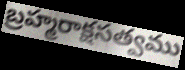
బ్రహ్మరాక్షసత్వము